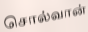
சொல்வான்